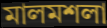
মালমশলা